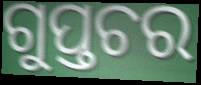
ଗୁପ୍ତଚର